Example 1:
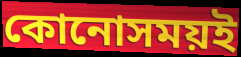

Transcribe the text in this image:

কোনোসময়ই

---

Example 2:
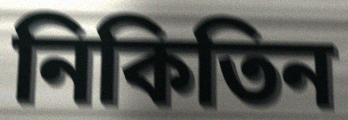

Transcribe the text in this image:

নিকিতিন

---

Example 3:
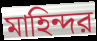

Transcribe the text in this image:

মাহিন্দর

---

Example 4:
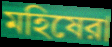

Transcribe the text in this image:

মহিষেরা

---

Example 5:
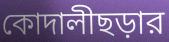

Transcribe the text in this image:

কোদালীছড়ার